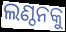
ଲଣ୍ଠନକୁ